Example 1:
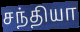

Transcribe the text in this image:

சந்தியா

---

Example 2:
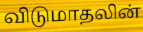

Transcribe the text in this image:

விடுமாதலின்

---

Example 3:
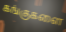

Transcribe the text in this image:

கங்குகளை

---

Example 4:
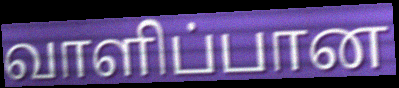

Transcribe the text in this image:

வாளிப்பான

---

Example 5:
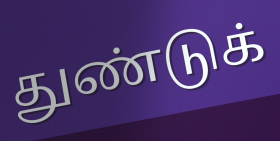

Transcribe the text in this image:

துண்டுக்